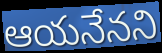
ఆయనేనని